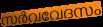
സർവവേദസം